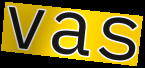
vas